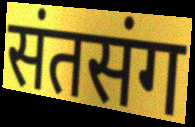
संतसंग